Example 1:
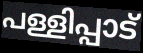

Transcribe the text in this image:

പള്ളിപ്പാട്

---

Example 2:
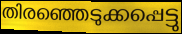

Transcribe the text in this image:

തിരഞ്ഞെടുക്കപ്പെട്ടു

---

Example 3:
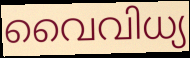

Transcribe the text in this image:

വൈവിധ്യ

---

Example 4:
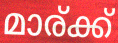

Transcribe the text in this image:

മാര്ക്ക്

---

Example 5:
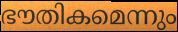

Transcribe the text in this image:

ഭൗതികമെന്നും